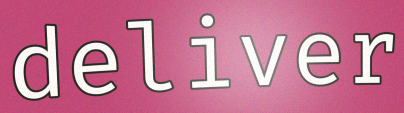
deliver